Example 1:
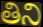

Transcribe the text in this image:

తిని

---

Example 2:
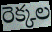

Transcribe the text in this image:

రెక్కల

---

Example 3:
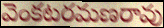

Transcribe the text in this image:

వెంకటరమణరావు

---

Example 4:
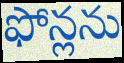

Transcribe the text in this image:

ఫోన్లను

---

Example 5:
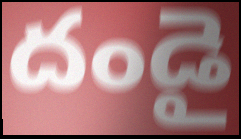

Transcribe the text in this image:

దండై